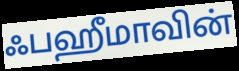
ஃபஹீமாவின்